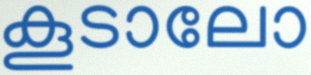
കൂടാലോ